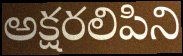
అక్షరలిపిని